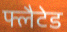
फ्लैटेड